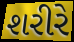
શરીરે